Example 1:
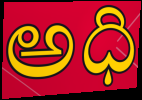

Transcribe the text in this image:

అధి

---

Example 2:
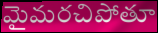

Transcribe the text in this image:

మైమరచిపోతూ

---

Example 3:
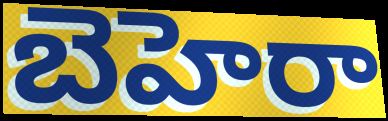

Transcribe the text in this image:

బెహెరా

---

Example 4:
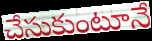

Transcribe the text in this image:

చేసుకుంటూనే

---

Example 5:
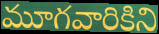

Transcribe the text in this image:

మూగవారికిని